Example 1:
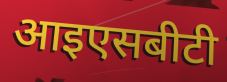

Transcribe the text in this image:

आइएसबीटी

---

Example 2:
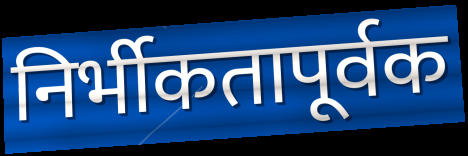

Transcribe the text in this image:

निर्भीकतापूर्वक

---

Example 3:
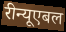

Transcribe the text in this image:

रीन्यूएबल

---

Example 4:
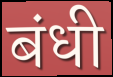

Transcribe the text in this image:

बंधी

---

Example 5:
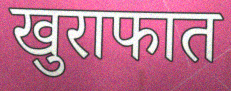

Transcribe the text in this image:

खुराफात